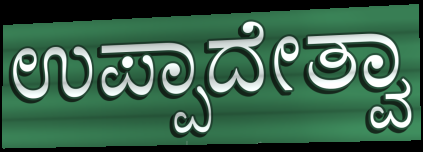
ಉಪ್ಪಾದೇತ್ವಾ